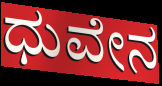
ಧುವೇನ